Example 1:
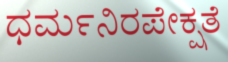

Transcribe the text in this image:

ಧರ್ಮನಿರಪೇಕ್ಷತೆ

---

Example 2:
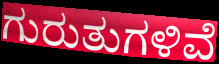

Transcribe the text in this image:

ಗುರುತುಗಳಿವೆ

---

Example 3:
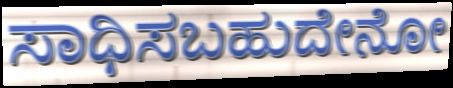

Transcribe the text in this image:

ಸಾಧಿಸಬಹುದೇನೋ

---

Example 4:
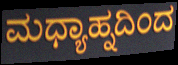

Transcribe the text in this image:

ಮಧ್ಯಾಹ್ನದಿಂದ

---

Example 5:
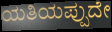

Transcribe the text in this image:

ಯತಿಯಪ್ಪುದೇ